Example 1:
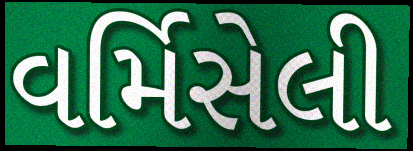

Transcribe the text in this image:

વર્મિસેલી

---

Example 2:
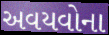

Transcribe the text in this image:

અવયવોના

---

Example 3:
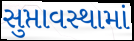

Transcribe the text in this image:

સુપ્તાવસ્થામાં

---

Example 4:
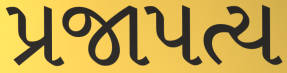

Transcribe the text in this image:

પ્રજાપત્ય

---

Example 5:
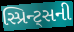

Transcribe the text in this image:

સ્પ્રિન્ટ્સની